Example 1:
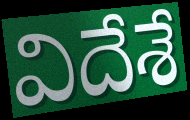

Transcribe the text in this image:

విదేశే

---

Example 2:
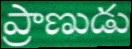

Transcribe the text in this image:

ప్రాణుడు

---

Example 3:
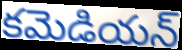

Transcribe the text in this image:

కమెడియన్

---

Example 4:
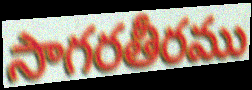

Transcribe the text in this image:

సాగరతీరము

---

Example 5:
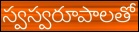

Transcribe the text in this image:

స్వస్వరూపాలతో